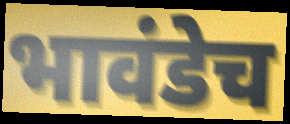
भावंडेच